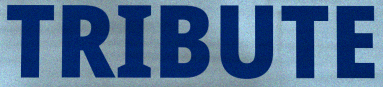
TRIBUTE